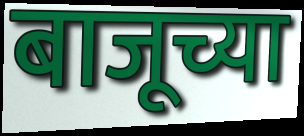
बाजूच्या